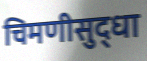
चिमणीसुद्धा